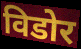
विडोर